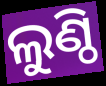
ଲୁଣ୍ଠି